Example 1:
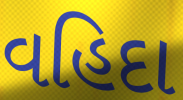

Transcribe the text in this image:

વહિદા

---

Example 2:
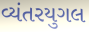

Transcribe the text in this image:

વ્યંતરયુગલ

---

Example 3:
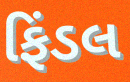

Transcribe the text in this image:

ફિંડલ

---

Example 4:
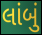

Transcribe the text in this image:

લાંબું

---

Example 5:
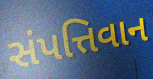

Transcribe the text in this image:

સંપત્તિવાન